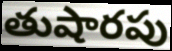
తుషారపు